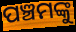
ପଞ୍ଚମଙ୍କୁ